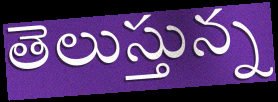
తెలుస్తున్న